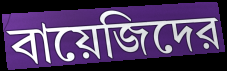
বায়েজিদের